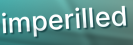
imperilled